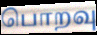
பொறவு